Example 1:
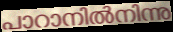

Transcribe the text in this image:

പാറാനിൽനിന്നു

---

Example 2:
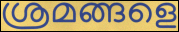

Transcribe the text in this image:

ശ്രമങ്ങളെ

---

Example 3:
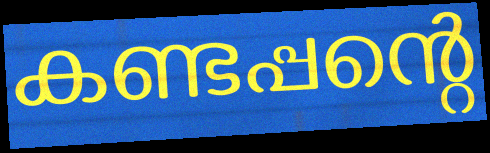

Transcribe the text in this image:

കണ്ടപ്പന്റെ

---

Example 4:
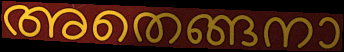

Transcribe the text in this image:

അതെങ്ങനാ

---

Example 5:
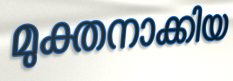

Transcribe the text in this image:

മുക്തനാക്കിയ